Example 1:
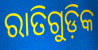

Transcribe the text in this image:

ରାତିଗୁଡ଼ିକ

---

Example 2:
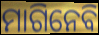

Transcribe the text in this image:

ମାଗିନେବି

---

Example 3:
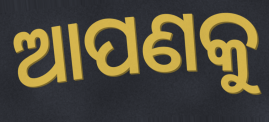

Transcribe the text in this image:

ଆପଣକୁ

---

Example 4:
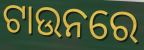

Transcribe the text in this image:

ଟାଉନରେ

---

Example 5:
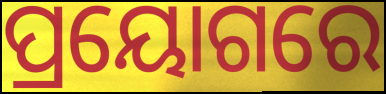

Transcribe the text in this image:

ପ୍ରୟୋଗରେ